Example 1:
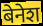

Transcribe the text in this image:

बेनेश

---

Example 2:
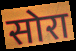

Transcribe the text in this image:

सोरा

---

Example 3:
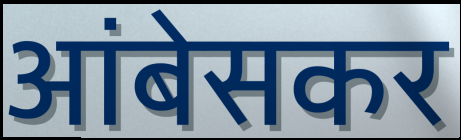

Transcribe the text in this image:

आंबेसकर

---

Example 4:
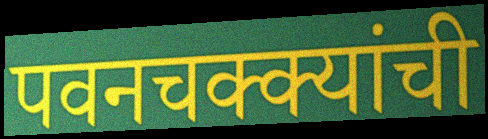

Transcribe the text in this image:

पवनचक्क्यांची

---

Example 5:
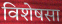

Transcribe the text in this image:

विशेषसा